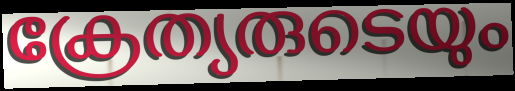
ക്രേത്യരുടെയും